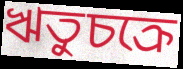
ঋতুচক্রে